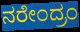
ನರೇಂದ್ರಂ